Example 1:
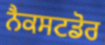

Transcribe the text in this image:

ਨੈਕਸਟਡੋਰ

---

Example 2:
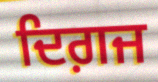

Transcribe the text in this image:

ਦਿਗ਼ਜ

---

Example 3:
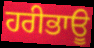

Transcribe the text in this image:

ਹਰੀਭਾਊ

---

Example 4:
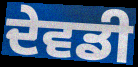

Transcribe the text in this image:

ਦੇਵਡੀ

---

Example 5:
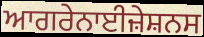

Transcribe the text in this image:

ਆਗਰੇਨਾਈਜ਼ੇਸ਼ਨਸ